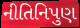
નીતિનિપુણ